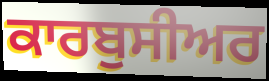
ਕਾਰਬੁਸੀਅਰ